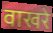
वाखरे